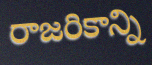
రాజరికాన్ని